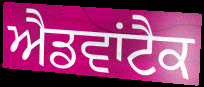
ਐਡਵਾਂਟੈਕ